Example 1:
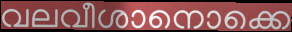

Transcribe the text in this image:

വലവീശാനൊക്കെ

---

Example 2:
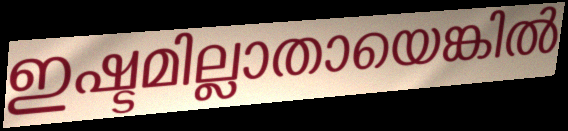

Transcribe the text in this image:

ഇഷ്ടമില്ലാതായെങ്കിൽ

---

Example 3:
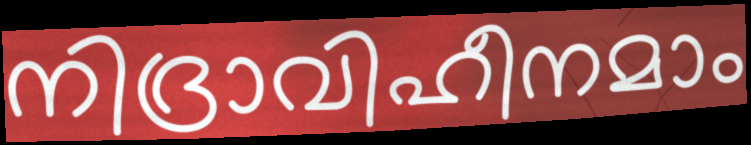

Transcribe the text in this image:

നിദ്രാവിഹീനമാം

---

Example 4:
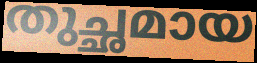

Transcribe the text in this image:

തുച്ഛമായ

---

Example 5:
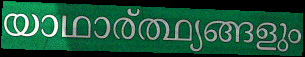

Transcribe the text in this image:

യാഥാര്ത്ഥ്യങ്ങളും